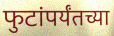
फुटांपर्यंतच्या